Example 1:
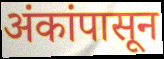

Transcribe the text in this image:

अंकांपासून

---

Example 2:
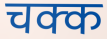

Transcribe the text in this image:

चक्‍क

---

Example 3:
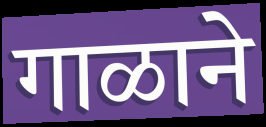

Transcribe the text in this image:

गाळाने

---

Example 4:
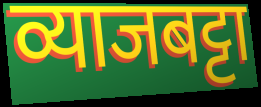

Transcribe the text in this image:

व्याजबट्टा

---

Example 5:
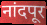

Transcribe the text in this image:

नांदपूर